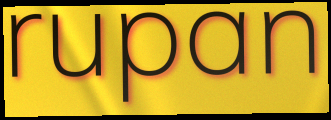
rupan